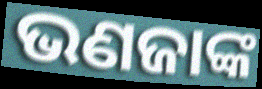
ଭଣଜାଙ୍କ